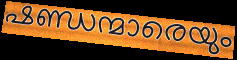
ഷണ്ഡന്മാരെയും